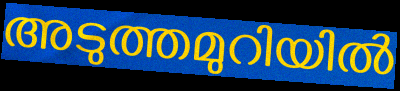
അടുത്തമുറിയിൽ